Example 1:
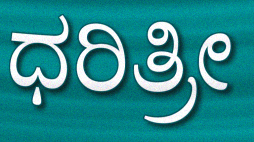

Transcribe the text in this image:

ಧರಿತ್ರೀ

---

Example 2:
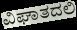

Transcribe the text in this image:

ವಿಘಾತದಲಿ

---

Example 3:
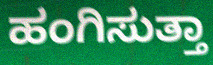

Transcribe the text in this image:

ಹಂಗಿಸುತ್ತಾ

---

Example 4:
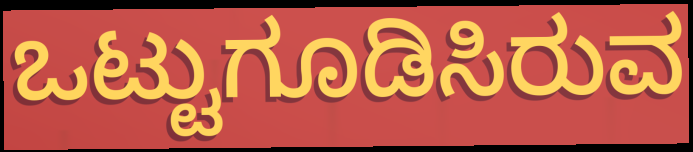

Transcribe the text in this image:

ಒಟ್ಟುಗೂಡಿಸಿರುವ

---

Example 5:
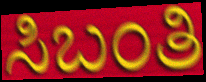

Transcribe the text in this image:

ಸಿಬಂತಿ